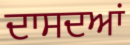
ਦਾਸਦਆਂ